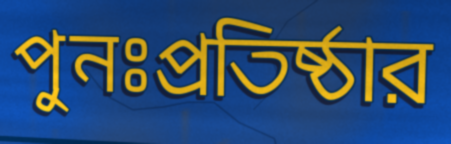
পুনঃপ্রতিষ্ঠার